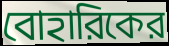
বোহারিকের